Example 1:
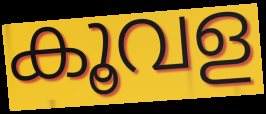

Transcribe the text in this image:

കൂവള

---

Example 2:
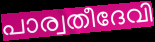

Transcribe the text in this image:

പാര്വതീദേവി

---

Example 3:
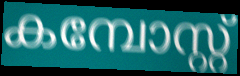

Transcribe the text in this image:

കമ്പോസ്റ്റ്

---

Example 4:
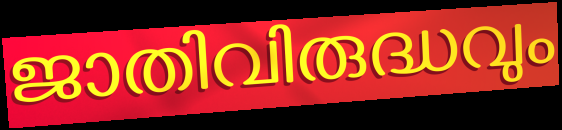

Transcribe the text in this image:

ജാതിവിരുദ്ധവും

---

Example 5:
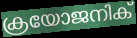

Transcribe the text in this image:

ക്രയോജനിക്